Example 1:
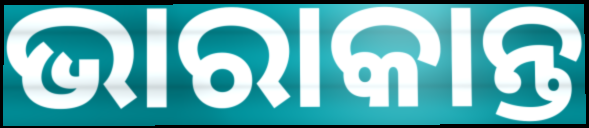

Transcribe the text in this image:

ଭାରାକାନ୍ତ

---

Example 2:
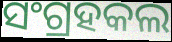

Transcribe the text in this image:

ସଂଗ୍ରହକଲ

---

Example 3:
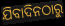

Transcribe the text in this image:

ଯିବାଦିନଠାରୁ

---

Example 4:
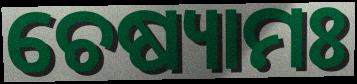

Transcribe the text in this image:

ଚେଷ୍ୟାମଃ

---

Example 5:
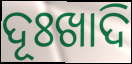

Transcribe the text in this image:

ଦୂଃଖାଦି